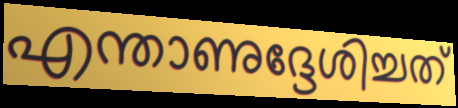
എന്താണുദ്ദേശിച്ചത്